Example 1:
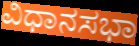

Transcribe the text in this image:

ವಿಧಾನಸಭಾ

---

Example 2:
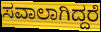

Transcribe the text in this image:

ಸವಾಲಾಗಿದ್ದರೆ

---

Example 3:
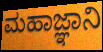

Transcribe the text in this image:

ಮಹಾಜ್ಞಾನಿ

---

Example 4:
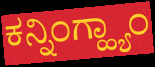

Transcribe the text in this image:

ಕನ್ನಿಂಗ್ಹ್ಯಾಂ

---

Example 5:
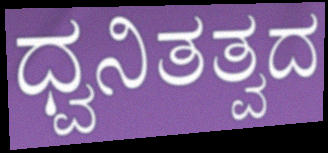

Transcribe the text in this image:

ಧ್ವನಿತತ್ವದ